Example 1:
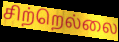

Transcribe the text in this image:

சிற்றெல்லை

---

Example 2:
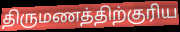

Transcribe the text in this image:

திருமணத்திற்குரிய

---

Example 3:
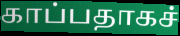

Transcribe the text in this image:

காப்பதாகச்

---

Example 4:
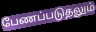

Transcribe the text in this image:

பேணப்படுதலும்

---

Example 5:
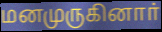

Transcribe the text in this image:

மனமுருகினார்